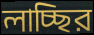
লাচ্ছির